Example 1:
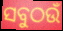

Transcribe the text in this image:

ସବୁଠଉଁ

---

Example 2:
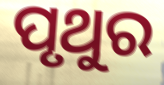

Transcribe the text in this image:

ପୃଥୁର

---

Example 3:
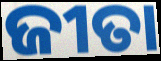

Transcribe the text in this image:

ଜୀତା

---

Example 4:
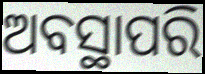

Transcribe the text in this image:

ଅବସ୍ଥାପରି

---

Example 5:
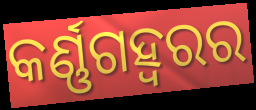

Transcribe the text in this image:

କର୍ଣ୍ଣଗହ୍ୱରର